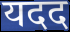
यदद